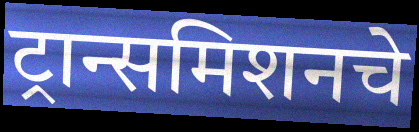
ट्रान्समिशनचे